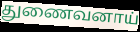
துணைவனாய்